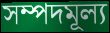
সম্পদমূল্য